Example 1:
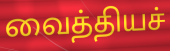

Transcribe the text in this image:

வைத்தியச்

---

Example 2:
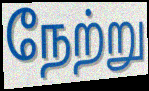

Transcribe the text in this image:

நேற்று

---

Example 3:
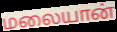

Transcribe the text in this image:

மலையான்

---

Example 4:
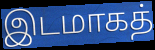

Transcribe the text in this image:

இடமாகத்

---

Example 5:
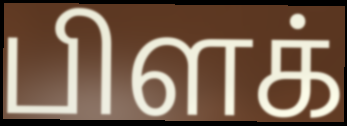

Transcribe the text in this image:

பிளக்